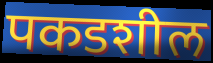
पकडशील